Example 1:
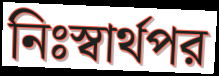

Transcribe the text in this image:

নিঃস্বার্থপর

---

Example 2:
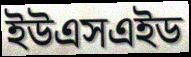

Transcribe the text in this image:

ইউএসএইড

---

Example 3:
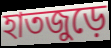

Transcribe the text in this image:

হাতজুড়ে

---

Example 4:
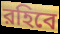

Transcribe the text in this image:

রহিবে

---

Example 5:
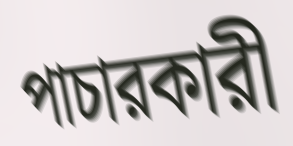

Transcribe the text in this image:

পাচারকারী